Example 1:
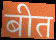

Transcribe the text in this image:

बीत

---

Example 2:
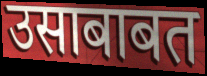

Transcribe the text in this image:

उसाबाबत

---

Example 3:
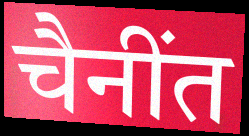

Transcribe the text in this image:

चैनींत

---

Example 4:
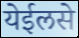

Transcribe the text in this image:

येईलसे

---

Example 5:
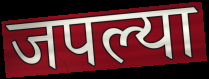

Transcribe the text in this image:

जपल्या